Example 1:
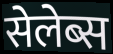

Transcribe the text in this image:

सेलेब्‍स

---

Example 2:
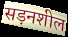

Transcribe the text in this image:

सड़नशील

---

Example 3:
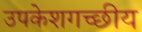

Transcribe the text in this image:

उपकेशगच्छीय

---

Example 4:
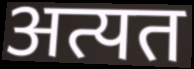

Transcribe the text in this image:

अत्यत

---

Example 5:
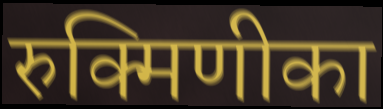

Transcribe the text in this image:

रुक्मिणीका